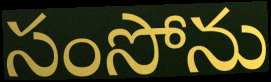
సంసోను